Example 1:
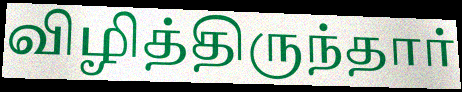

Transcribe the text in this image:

விழித்திருந்தார்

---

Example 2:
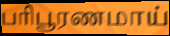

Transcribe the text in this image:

பரிபூரணமாய்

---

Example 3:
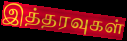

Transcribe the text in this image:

இத்தரவுகள்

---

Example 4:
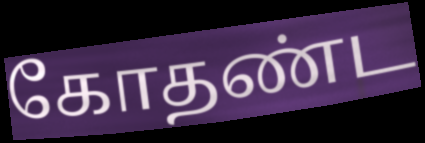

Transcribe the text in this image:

கோதண்ட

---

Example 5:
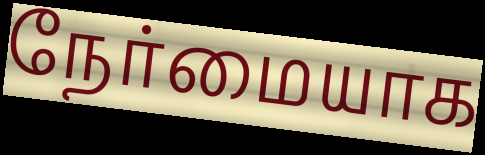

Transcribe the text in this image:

நேர்மையாக